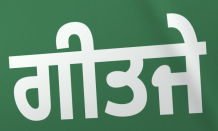
ਗੀਤਜੇ